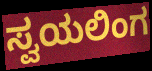
ಸ್ವಯಲಿಂಗ